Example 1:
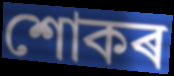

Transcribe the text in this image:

শোকৰ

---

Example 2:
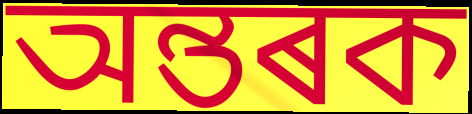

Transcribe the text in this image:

অন্তৰক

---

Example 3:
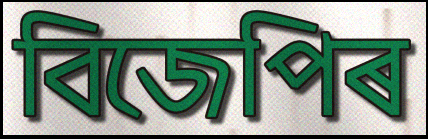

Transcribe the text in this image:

বিজেপিৰ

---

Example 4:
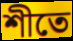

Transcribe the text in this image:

শীতে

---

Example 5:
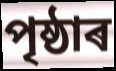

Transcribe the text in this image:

পৃষ্ঠাৰ